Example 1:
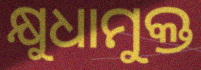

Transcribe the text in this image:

କ୍ଷୁଧାମୁକ୍ତ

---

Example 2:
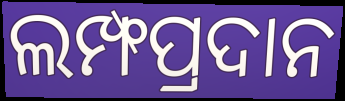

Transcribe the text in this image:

ଲମ୍ଫପ୍ରଦାନ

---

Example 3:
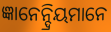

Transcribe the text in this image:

ଜ୍ଞାନେନ୍ଦ୍ରିୟମାନେ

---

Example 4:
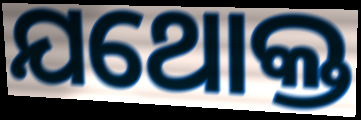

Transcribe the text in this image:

ଯଥୋକ୍ତ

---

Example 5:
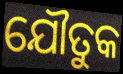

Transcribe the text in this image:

ଯୌତୁକ